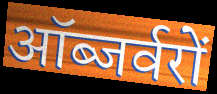
ऑब्जर्वरों